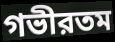
গভীরতম